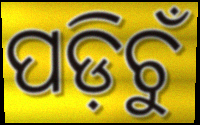
ପଡ଼ିଚୁଁ